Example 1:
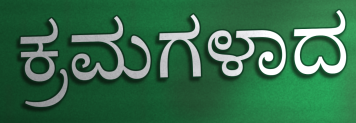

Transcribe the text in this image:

ಕ್ರಮಗಳಾದ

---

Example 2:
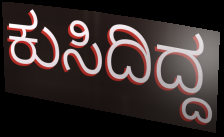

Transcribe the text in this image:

ಕುಸಿದಿದ್ದ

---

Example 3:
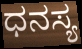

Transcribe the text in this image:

ಧನಸ್ಯ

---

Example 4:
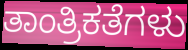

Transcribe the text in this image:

ತಾಂತ್ರಿಕತೆಗಳು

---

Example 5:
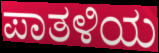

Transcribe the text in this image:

ಪಾತಳಿಯ